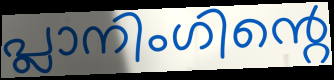
പ്ലാനിംഗിന്റെ